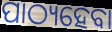
ପାଠ୍ୟହେବା